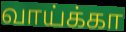
வாய்க்கா